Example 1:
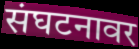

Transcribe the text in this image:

संघटनावर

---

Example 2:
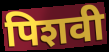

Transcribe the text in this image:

पिशवी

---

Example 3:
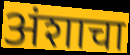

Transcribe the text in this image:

अंशाचा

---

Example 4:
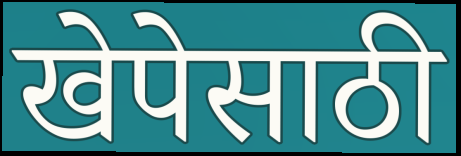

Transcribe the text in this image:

खेपेसाठी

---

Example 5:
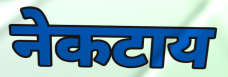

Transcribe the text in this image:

नेकटाय